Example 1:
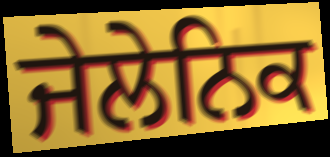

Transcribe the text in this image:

ਜੇਲੇਨਿਕ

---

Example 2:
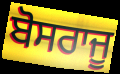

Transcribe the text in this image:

ਬੋਸਰਾਜੂ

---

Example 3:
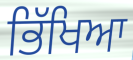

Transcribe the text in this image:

ਭਿੱਖਿਆ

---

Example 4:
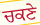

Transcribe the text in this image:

ਚਕਣੇ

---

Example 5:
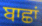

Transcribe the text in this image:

ਬਾਛਾਂ